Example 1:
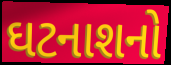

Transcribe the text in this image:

ઘટનાશનો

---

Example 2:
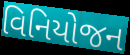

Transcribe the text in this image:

વિનિયોજન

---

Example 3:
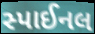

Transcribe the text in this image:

સ્પાઈનલ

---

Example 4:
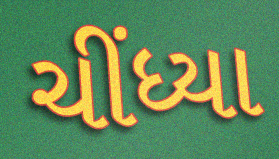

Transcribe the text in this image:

ચીંધ્યા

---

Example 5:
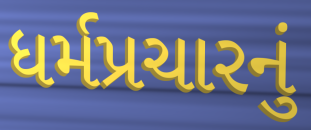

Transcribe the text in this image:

ધર્મપ્રચારનું